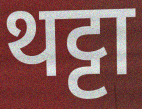
थट्टा